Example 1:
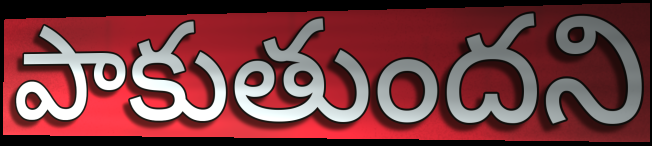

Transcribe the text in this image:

పాకుతుందని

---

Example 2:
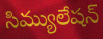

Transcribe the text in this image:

సిమ్యులేషన్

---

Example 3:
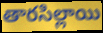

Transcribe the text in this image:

తారసిల్లాయి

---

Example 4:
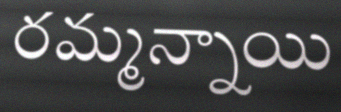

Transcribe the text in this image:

రమ్మన్నాయి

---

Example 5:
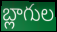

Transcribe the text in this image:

బ్లాగుల